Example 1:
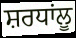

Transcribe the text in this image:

ਸ਼ਰਧਾਂਲੂ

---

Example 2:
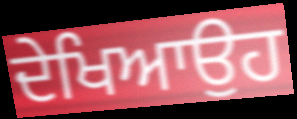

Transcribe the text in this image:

ਦੇਖਿਆਉਹ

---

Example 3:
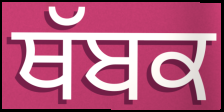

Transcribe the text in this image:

ਥੱਬਕ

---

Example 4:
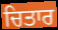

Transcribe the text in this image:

ਚਿਤਾਰ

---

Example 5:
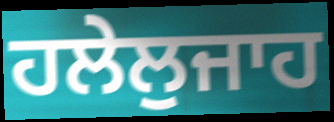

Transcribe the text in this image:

ਹਲੇਲੁਜਾਹ